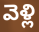
వెళ్లి